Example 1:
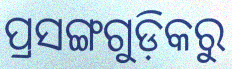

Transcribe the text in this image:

ପ୍ରସଙ୍ଗଗୁଡ଼ିକରୁ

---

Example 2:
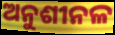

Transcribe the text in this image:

ଅନୁଶୀନଳ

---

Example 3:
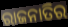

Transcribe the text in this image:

ରାଜନାତିର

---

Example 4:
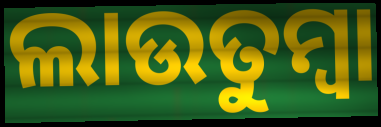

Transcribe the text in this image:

ଲାଉତୁମ୍ବା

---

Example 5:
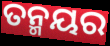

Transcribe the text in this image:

ତନ୍ମୟର